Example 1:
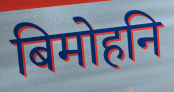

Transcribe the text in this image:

बिमोहनि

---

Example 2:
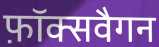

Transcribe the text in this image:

फ़ॉक्सवैगन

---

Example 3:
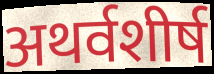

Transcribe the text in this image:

अथर्वशीर्ष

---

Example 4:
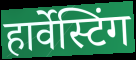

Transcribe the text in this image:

हार्वेस्टिंग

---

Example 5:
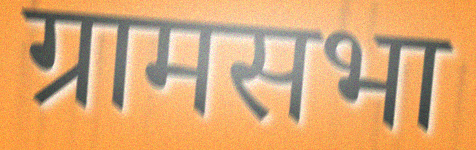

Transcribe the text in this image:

ग्रामसभा